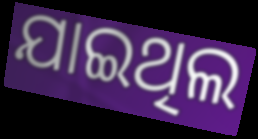
ଯାଇଥିଲ